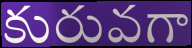
కురువగా